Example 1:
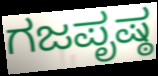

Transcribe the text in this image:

ಗಜಪೃಷ್ಠ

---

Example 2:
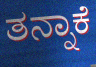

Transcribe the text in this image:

ತನ್ನಾಕೆ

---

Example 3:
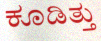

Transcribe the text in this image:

ಕೂಡಿತ್ತು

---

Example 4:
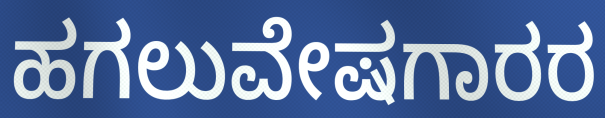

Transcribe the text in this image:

ಹಗಲುವೇಷಗಾರರ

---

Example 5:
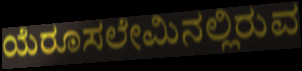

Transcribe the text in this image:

ಯೆರೂಸಲೇಮಿನಲ್ಲಿರುವ